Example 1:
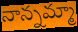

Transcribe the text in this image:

నాన్నమ్మా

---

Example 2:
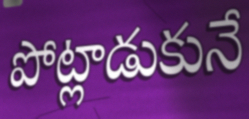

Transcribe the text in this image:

పోట్లాడుకునే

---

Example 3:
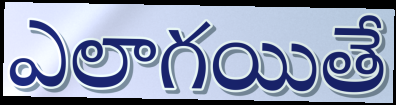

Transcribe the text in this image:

ఎలాగయితే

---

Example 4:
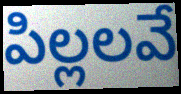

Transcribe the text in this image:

పిల్లలవే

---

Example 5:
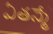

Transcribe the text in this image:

ఏతన్మే